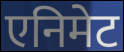
एनिमेट